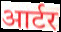
आर्टर